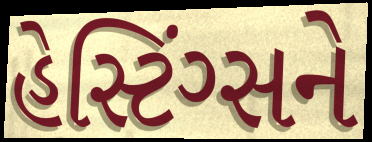
હેસ્ટિંગ્સને